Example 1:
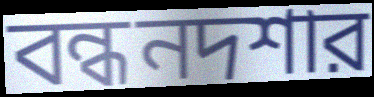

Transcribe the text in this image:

বন্ধনদশার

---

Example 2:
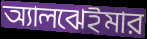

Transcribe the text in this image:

অ্যালঝেইমার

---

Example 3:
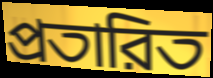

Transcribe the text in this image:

প্রতারিত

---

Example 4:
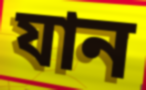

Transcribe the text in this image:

যান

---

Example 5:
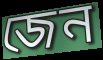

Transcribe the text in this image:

জেন